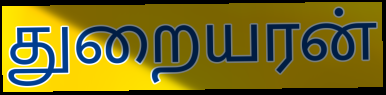
துறையரன்